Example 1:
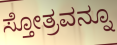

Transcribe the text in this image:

ಸ್ತೋತ್ರವನ್ನೂ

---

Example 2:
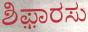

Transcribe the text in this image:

ಶಿಫ಼ಾರಸು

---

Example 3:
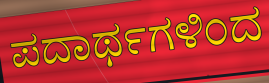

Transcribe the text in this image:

ಪದಾರ್ಥಗಳಿಂದ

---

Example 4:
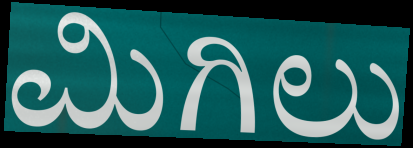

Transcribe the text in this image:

ಮಿಗಿಲು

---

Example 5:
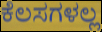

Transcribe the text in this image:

ಕೆಲಸಗಳಲ್ಲ